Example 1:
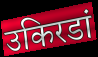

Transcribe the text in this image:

उकिरडां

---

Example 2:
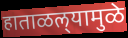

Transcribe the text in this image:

हाताळल्यामुळे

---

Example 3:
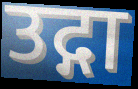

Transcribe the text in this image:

उद्गा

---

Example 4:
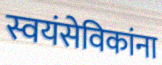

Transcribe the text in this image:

स्वयंसेविकांना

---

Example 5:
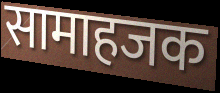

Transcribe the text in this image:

सामाहजक